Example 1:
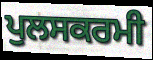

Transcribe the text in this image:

ਪੁਲਸਕਰਮੀ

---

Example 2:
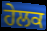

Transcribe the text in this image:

ਹੇਲਕ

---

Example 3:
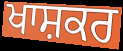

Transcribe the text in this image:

ਖਾਸ਼ਕਰ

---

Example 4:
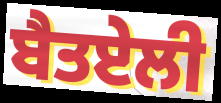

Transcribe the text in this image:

ਬੈਤਏਲੀ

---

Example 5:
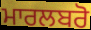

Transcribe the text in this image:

ਮਾਰਲਬਰੋ